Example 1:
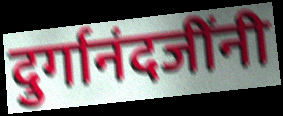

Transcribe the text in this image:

दुर्गानंदजींनी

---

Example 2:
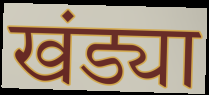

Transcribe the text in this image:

खंड्या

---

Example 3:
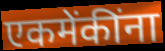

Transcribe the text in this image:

एकमेंकींना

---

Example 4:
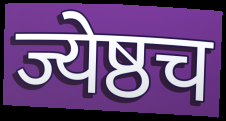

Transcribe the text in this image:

ज्येष्ठच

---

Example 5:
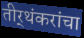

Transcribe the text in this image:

तीर्थंकरांचा